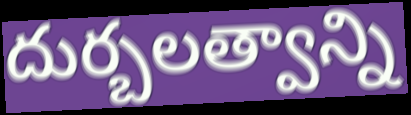
దుర్బలత్వాన్ని